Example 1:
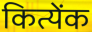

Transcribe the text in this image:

कित्येंक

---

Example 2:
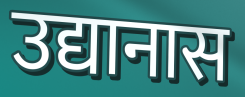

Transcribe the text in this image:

उद्यानास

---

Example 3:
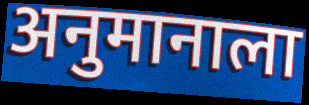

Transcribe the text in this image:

अनुमानाला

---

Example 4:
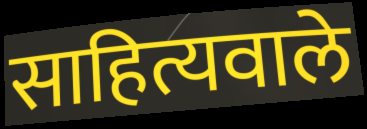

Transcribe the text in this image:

साहित्यवाले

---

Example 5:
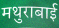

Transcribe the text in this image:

मथुराबाई